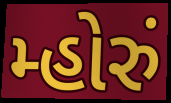
મ્હોરું